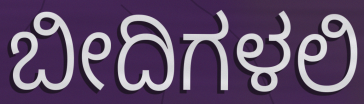
ಬೀದಿಗಳಲಿ